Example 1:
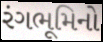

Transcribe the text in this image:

રંગભૂમિનો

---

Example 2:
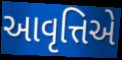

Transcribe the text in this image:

આવૃત્તિએ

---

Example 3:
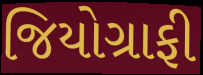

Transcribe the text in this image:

જિયોગ્રાફી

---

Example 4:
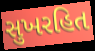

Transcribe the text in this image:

સુખરહિત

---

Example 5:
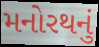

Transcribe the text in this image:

મનોરથનું